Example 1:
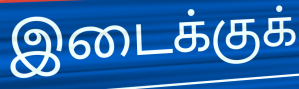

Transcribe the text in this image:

இடைக்குக்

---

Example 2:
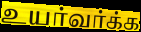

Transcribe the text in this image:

உயர்வர்க்க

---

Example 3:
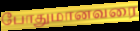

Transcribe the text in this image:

போதுமானவரை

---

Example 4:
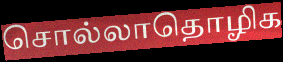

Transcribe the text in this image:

சொல்லாதொழிக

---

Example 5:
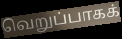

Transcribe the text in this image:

வெறுப்பாகக்